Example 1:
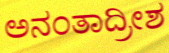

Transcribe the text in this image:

ಅನಂತಾದ್ರೀಶ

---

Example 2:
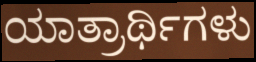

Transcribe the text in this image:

ಯಾತ್ರಾರ್ಥಿಗಳು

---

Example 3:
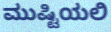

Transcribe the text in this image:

ಮುಷ್ಟಿಯಲಿ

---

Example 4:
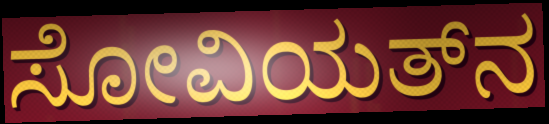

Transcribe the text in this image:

ಸೋವಿಯತ್‌ನ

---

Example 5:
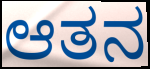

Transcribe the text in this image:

ಆತನ